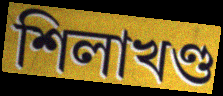
শিলাখণ্ড